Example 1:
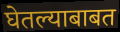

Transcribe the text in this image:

घेतल्याबाबत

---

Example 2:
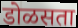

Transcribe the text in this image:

डोळसता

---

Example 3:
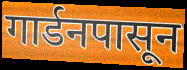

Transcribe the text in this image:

गार्डनपासून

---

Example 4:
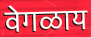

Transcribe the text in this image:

वेगळाय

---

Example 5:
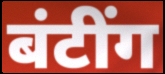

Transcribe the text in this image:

बंटींग